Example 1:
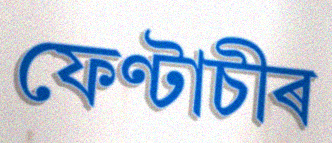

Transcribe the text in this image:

ফেণ্টাচীৰ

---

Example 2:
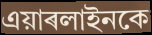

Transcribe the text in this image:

এয়াৰলাইনকে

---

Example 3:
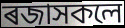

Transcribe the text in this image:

ৰজাসকলে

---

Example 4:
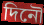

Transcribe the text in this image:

দিনৌ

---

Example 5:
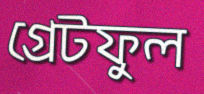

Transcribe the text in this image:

গ্ৰেটফুল